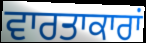
ਵਾਰਤਾਕਾਰਾਂ